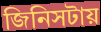
জিনিসটায়